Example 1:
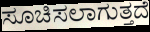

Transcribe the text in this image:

ಸೂಚಿಸಲಾಗುತ್ತದೆ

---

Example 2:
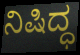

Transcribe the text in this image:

ನಿಷಿದ್ಧ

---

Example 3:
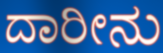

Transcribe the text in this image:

ದಾರೀನು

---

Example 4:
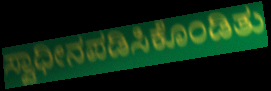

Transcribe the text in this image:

ಸ್ವಾಧೀನಪಡಿಸಿಕೊಂಡಿತು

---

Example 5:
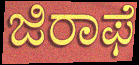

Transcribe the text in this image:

ಜಿರಾಫೆ